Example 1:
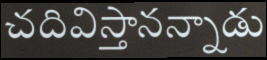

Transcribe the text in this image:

చదివిస్తానన్నాడు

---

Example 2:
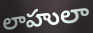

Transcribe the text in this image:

లాహులా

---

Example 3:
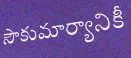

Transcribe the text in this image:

సౌకుమార్యానికీ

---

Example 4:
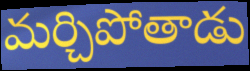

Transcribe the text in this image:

మర్చిపోతాడు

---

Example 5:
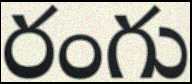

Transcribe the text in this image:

రంగు